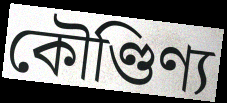
কৌণ্ডিণ্য